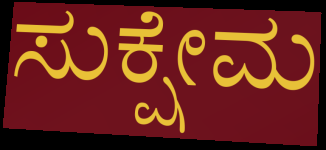
ಸುಕ್ಷೇಮ